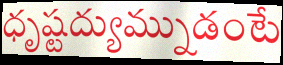
ధృష్టద్యుమ్నుడంటే